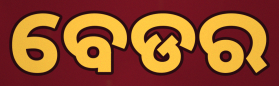
ବେଡର